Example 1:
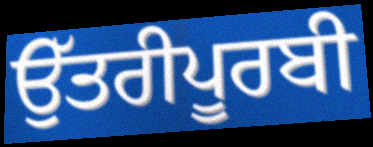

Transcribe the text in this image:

ਉੱਤਰੀਪੂਰਬੀ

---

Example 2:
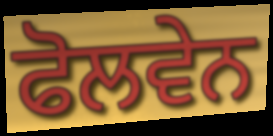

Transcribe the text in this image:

ਫੋਲਵੇਨ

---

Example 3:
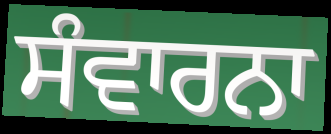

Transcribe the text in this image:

ਸੰਵਾਰਨਾ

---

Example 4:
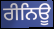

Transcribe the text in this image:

ਰੀਨਿਊ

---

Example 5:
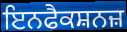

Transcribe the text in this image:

ਇਨਫੈਕਸ਼ਨਜ਼